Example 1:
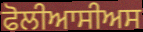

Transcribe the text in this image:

ਫੋਲੀਆਸੀਅਸ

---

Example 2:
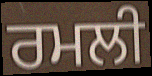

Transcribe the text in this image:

ਰਮਲੀ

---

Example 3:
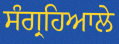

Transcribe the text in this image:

ਸੰਗ੍ਰਹਿਆਲੇ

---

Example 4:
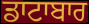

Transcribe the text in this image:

ਡਾਟਾਬਾਰ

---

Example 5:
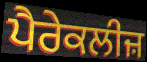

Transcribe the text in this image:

ਪੈਰੇਕਲੀਜ਼